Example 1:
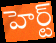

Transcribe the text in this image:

హెర్ట్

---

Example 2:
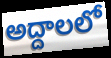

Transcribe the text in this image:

అద్దాలలో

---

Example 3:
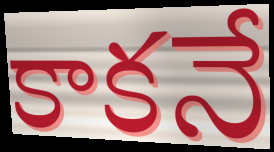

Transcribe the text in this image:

కాకనే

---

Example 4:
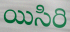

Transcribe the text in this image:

యిసిరి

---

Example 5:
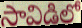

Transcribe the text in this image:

సావిడిలో